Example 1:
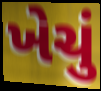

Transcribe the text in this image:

ખેચું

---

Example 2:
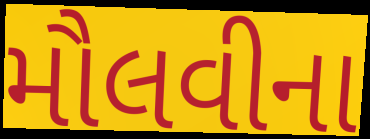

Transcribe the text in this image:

મૌલવીના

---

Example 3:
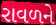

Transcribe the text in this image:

રાવળને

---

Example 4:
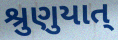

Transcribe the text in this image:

શ્રુણુયાત્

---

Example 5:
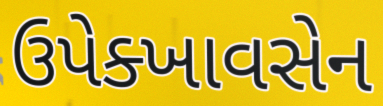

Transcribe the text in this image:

ઉપેક્ખાવસેન